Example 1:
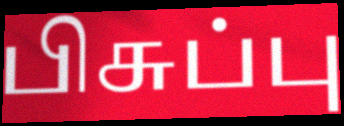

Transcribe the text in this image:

பிசுப்பு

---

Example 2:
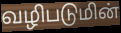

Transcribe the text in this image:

வழிபடுமின்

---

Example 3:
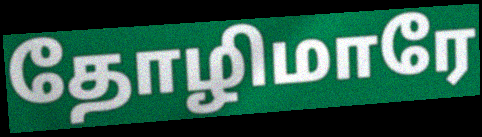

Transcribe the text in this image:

தோழிமாரே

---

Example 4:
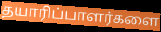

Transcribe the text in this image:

தயாரிப்பாளர்களை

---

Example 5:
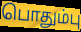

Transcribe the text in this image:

பொதும்பு